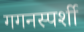
गगनस्पर्शी